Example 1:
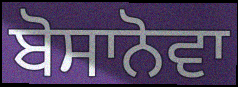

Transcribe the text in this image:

ਬੋਸਾਨੋਵਾ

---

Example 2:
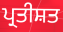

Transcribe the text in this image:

ਪ੍ਰਤੀਸ਼ਤ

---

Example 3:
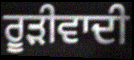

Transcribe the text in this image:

ਰੂੜੀਵਾਦੀ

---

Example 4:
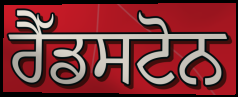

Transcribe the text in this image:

ਰੈੱਡਸਟੋਨ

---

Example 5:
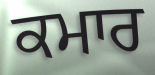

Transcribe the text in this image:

ਕਮਾਰ